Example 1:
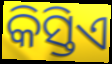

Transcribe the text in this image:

କିସ୍ତିଏ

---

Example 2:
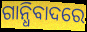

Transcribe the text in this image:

ଗାନ୍ଧିବାଦରେ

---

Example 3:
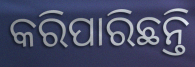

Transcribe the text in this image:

କରିପାରିଛନ୍ତି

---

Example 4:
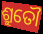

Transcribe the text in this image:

ଶ୍ରୁତୌ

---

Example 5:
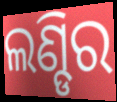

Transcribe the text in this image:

ଲଣ୍ଡିର